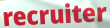
recruiter